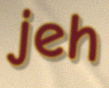
jeh